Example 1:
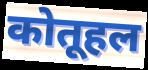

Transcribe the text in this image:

कोतूहल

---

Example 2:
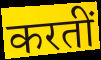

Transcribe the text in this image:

करतीं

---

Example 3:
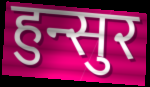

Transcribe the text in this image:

हुन्सुर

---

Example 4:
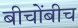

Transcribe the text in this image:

बीचोंबीच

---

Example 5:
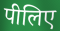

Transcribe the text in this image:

पीलिए